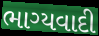
ભાગ્યવાદી